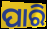
ପାରି